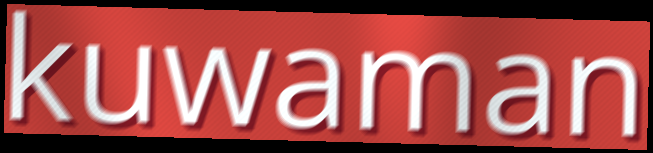
kuwaman